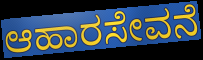
ಆಹಾರಸೇವನೆ